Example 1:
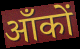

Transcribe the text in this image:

आँकों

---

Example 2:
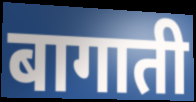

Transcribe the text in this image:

बागाती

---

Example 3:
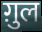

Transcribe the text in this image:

ग़ुल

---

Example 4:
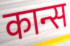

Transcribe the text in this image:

कान्‍स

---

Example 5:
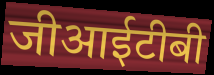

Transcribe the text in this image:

जीआईटीबी